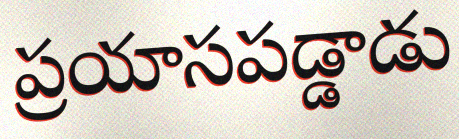
ప్రయాసపడ్డాడు